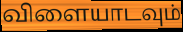
விளையாடவும்